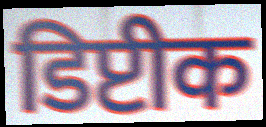
डिप्टीक